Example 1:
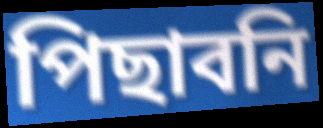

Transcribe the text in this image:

পিছাবনি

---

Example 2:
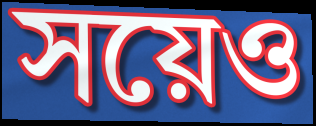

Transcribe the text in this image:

সয়েও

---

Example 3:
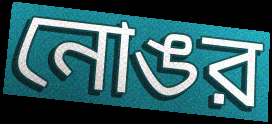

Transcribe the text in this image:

নোঙর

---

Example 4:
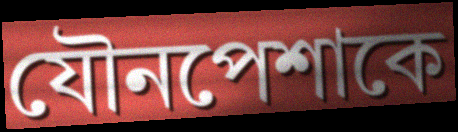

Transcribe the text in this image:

যৌনপেশাকে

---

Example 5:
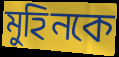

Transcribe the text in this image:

মুহিনকে